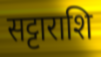
सट्टाराशि